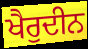
ਖੈਰੁਦੀਨ